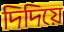
দিদিয়ে